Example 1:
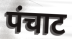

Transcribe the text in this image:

पंचाट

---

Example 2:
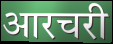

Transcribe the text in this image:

आरचरी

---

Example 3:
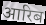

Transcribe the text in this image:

आरिब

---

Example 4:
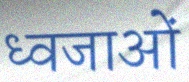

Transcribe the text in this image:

ध्वजाओं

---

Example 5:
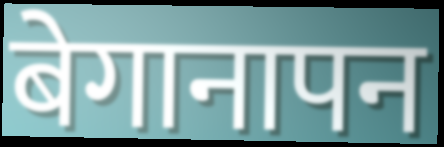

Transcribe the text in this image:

बेगानापन